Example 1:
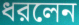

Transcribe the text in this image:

ধরলেন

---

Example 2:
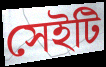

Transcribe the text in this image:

সেইটি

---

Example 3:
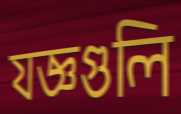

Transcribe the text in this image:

যজ্ঞগুলি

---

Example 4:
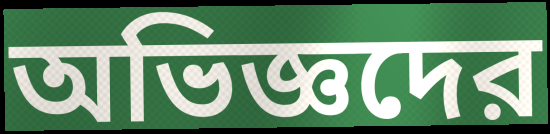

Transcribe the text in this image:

অভিজ্ঞদের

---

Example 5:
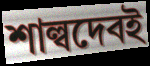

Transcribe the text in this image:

শাল্বদেবই